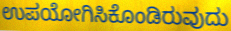
ಉಪಯೋಗಿಸಿಕೊಂಡಿರುವುದು